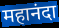
महानंदा